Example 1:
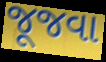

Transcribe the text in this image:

જૂજવા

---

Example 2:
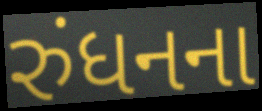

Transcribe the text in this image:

રુંધનના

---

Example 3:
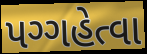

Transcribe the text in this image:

પગ્ગહેત્વા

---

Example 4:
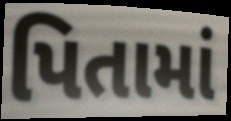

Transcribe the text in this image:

પિતામાં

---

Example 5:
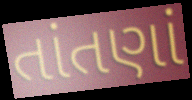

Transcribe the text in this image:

તાંતણાં